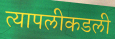
त्यापलीकडली